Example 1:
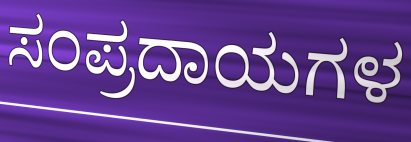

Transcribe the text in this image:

ಸಂಪ್ರದಾಯಗಳ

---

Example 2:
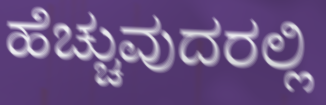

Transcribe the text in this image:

ಹೆಚ್ಚುವುದರಲ್ಲಿ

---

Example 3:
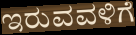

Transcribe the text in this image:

ಇರುವವಳಿಗೆ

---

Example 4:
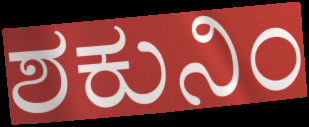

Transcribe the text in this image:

ಶಕುನಿಂ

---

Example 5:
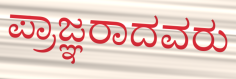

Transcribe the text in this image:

ಪ್ರಾಜ್ಞರಾದವರು